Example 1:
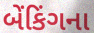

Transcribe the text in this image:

બેંકિંગના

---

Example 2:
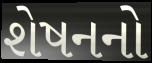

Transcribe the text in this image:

શેષનનો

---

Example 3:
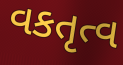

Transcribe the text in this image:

વકતૃત્વ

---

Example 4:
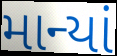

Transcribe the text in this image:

માન્યાં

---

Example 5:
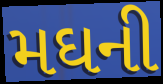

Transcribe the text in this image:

મઘની